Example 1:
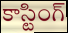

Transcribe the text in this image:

కాస్టింగ్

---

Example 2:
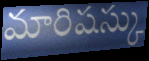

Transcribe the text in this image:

మారిషస్కు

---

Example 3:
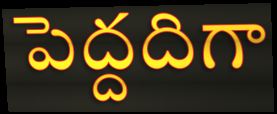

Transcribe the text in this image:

పెద్దదిగా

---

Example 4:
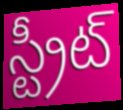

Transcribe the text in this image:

స్ట్రీట్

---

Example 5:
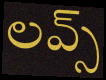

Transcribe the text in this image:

లవ్స్